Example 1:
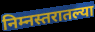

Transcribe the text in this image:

निम्नस्तरातल्या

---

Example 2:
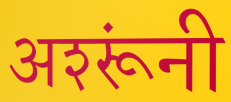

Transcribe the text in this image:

अश्रूंनी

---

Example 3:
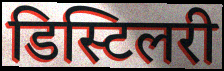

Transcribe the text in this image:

डिस्टिलरी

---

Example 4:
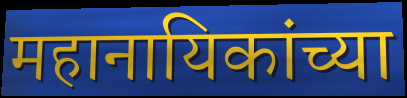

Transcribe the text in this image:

महानायिकांच्या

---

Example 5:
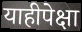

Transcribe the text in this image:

याहीपेक्षा